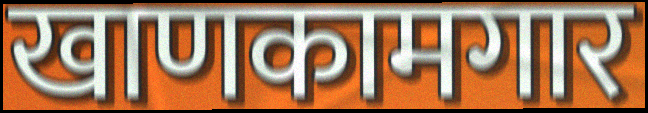
खाणकामगार